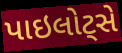
પાઇલોટ્સે